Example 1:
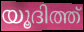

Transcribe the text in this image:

യൂദിത്ത്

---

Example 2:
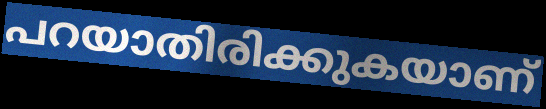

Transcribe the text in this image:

പറയാതിരിക്കുകയാണ്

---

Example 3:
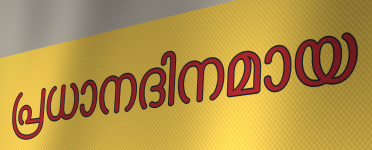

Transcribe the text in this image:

പ്രധാനദിനമായ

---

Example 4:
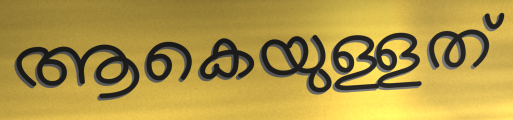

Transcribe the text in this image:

ആകെയുള്ളത്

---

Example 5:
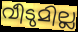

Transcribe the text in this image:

വീടുമില്ല